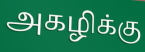
அகழிக்கு